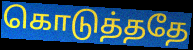
கொடுத்ததே